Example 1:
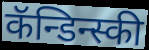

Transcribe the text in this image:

कॅन्डिन्स्की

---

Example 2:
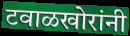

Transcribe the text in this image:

टवाळखोरांनी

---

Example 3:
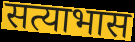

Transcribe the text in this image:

सत्याभास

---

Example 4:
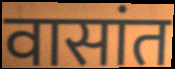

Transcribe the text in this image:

वासांत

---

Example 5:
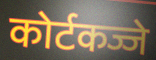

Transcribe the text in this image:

कोर्टकज्जे